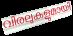
വിരലുകളുമായി